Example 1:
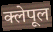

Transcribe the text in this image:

क्लेपूल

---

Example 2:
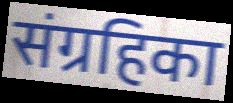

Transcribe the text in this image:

संग्रहिका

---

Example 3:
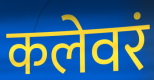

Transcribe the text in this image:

कलेवरं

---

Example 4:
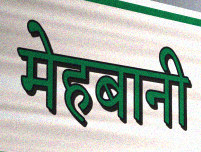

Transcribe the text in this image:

मेहबानी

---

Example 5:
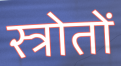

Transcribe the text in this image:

स्त्रोतों